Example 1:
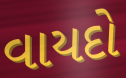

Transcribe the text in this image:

વાયદો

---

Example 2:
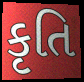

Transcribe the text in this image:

કૃતિ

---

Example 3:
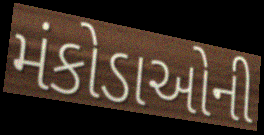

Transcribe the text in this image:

મંકોડાઓની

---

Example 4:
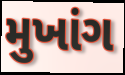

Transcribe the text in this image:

મુખાંગ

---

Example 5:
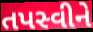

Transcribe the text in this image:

તપસ્વીને